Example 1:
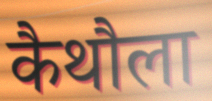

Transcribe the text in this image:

कैथौला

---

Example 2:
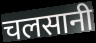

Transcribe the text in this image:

चलसानी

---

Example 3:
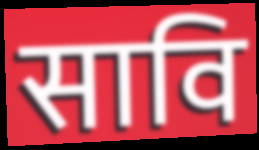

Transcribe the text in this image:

सावि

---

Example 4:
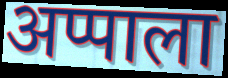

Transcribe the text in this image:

अप्पाला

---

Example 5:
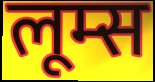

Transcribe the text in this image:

लूम्स